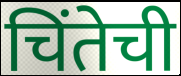
चिंतेची